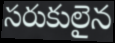
సరుకులైన